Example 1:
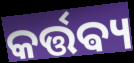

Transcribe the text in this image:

କର୍ତ୍ତଵ୍ୟ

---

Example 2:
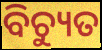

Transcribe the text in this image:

ବିଚ୍ୟୁତ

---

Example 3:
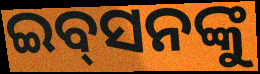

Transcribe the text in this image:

ଇବ୍‌ସନଙ୍କୁ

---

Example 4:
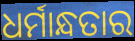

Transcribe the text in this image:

ଧର୍ମାନ୍ଧତାର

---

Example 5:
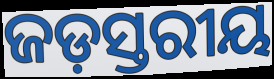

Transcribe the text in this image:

ଜଡ଼ସ୍ତରୀୟ